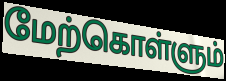
மேற்கொள்ளும்